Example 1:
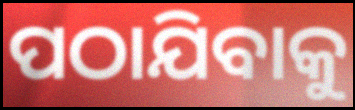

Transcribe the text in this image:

ପଠାଯିବାକୁ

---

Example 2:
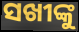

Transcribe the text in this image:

ସଖୀଙ୍କୁ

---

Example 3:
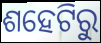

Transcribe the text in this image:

ଶହେଟିରୁ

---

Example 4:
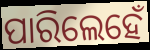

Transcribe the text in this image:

ପାରିଲେହେଁ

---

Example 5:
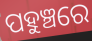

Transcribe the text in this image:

ପହୁଞ୍ଚରେ